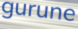
gurune